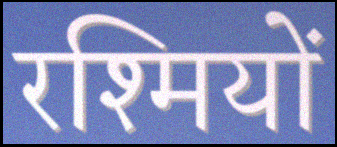
रश्मियों